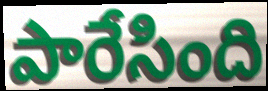
పారేసింది